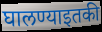
घालण्याइतकी